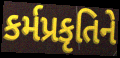
કર્મપ્રકૃતિને